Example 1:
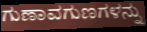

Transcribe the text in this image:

ಗುಣಾವಗುಣಗಳನ್ನು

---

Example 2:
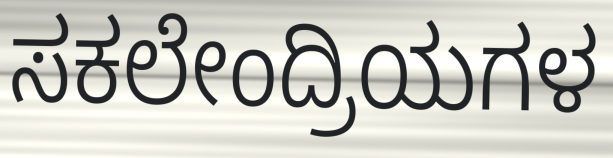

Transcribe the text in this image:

ಸಕಲೇಂದ್ರಿಯಗಳ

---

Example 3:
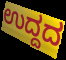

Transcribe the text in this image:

ಉದ್ದದ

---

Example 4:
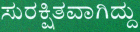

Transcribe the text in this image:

ಸುರಕ್ಷಿತವಾಗಿದ್ದು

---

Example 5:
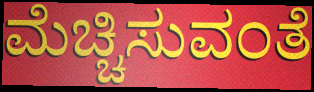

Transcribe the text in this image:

ಮೆಚ್ಚಿಸುವಂತೆ